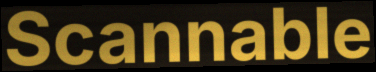
Scannable